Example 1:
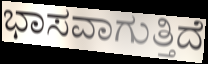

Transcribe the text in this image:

ಭಾಸವಾಗುತ್ತಿದೆ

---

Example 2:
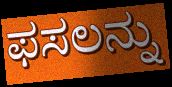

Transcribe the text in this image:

ಫಸಲನ್ನು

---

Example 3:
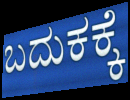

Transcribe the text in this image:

ಬದುಕಕ್ಕೆ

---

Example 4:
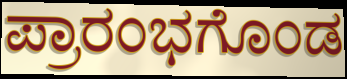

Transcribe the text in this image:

ಪ್ರಾರಂಭಗೊಂಡ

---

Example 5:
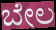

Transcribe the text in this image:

ಬೇಲ